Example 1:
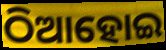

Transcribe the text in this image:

ଠିଆହୋଇ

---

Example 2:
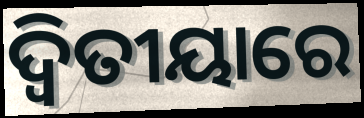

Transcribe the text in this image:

ଦ୍ୱିତୀୟାରେ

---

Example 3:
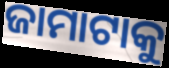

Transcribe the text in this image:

ଜାମାଟାକୁ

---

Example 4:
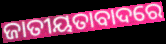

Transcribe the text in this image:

ଜାତୀୟତାବାଦରେ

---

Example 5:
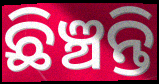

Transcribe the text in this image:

ଛିଞ୍ଚନ୍ତି